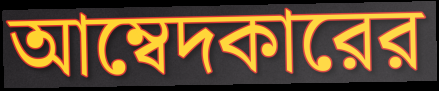
আম্বেদকারের